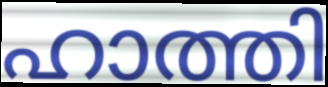
ഹാത്തി